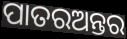
ପାତରଅନ୍ତର